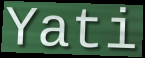
Yati